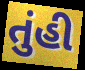
તુંહી